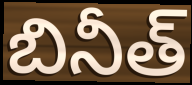
బినీత్